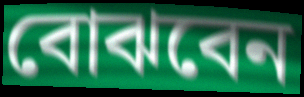
বোঝবেন